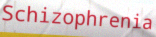
Schizophrenia